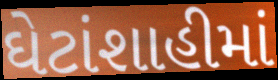
ઘેટાંશાહીમાં